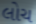
લોચ